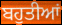
ਬਹੁਤੀਆਂ